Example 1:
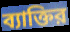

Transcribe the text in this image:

ব্যাক্তির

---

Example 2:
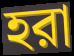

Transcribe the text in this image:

হরা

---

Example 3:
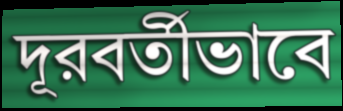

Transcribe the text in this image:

দূরবর্তীভাবে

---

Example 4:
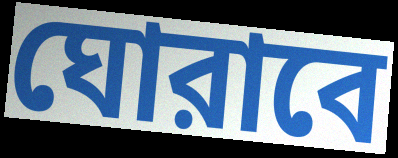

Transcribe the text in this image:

ঘোরাবে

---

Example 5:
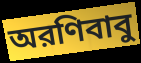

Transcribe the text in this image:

অরণিবাবু